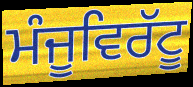
ਮੰਜੂਵਿਰੱਟੂ